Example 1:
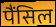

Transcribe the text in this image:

पैंसिल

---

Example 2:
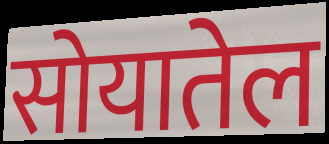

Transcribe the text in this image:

सोयातेल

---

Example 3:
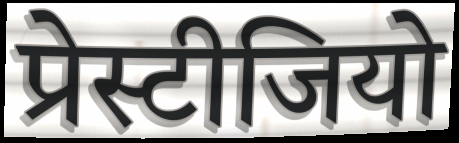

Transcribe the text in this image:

प्रेस्टीजियो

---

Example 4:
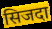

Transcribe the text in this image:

सिजदा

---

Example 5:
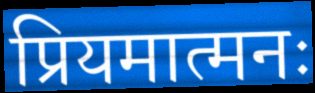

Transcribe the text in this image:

प्रियमात्मनः